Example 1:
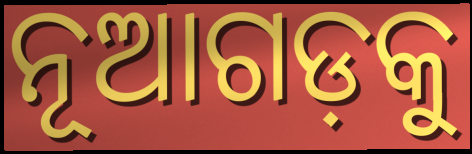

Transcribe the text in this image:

ନୂଆଗଡ଼କୁ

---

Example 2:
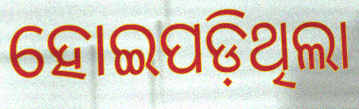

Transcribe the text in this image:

ହୋଇପଡ଼ିଥିଲା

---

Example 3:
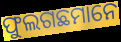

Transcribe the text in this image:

ଫୁଲଗଛମାନେ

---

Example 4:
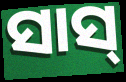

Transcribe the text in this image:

ସାସ୍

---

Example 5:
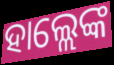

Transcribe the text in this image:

ହାଲ୍ଲେଙ୍କ